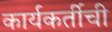
कार्यकर्तीची